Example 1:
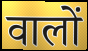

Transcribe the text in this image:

वालों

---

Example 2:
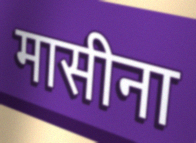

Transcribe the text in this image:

मासीना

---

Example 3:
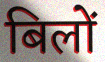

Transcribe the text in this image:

बिलों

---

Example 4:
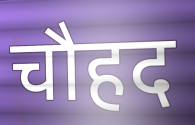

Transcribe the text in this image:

चौहद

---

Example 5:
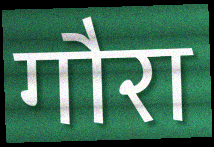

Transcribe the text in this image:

गौरा